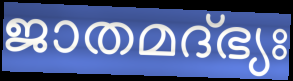
ജാതമദ്ഭ്യഃ